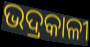
ଭଦ୍ରକାଳୀ